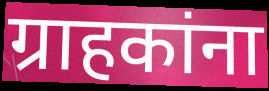
ग्राहकांना